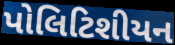
પોલિટિશીયન